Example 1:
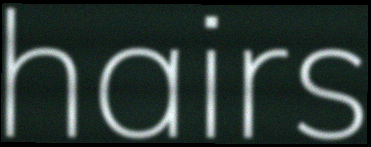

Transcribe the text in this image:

hairs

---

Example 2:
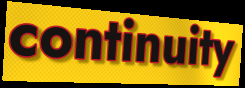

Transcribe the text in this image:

continuity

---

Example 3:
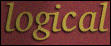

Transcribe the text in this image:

logical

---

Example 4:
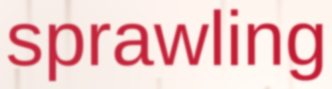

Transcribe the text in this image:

sprawling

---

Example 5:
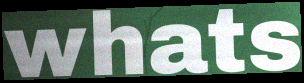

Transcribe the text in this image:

whats